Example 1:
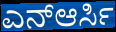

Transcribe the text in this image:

ಎನ್ಆರ್ಸಿ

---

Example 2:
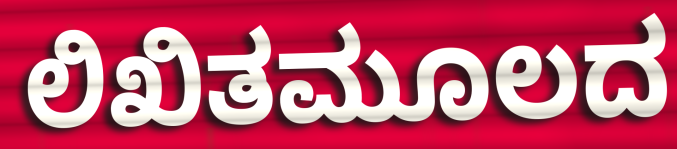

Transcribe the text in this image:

ಲಿಖಿತಮೂಲದ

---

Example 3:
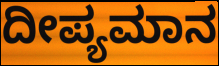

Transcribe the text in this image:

ದೀಪ್ಯಮಾನ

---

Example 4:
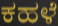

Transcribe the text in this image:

ಕಹಳೆ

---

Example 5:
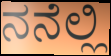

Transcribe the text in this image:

ನನೆಲ್ಲಿ